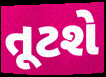
તૂટશે